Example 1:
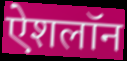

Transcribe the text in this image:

ऐशलॉन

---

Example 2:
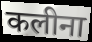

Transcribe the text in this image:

कलीना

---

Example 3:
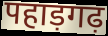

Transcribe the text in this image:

पहाड़गढ़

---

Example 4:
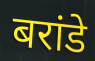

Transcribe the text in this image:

बरांडे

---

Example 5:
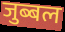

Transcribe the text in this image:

जुब्बल